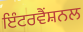
ਇੰਟਰਵੈਂਸ਼ਨਲ